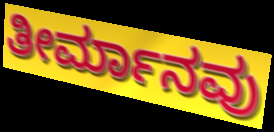
ತೀರ್ಮಾನವು